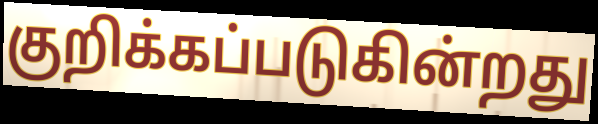
குறிக்கப்படுகின்றது